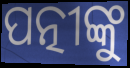
ପତ୍ନୀଙ୍କୁ